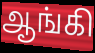
ஆங்கி